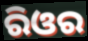
ରିଓର